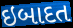
ઇબાદત